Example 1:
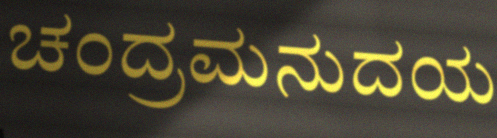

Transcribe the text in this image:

ಚಂದ್ರಮನುದಯ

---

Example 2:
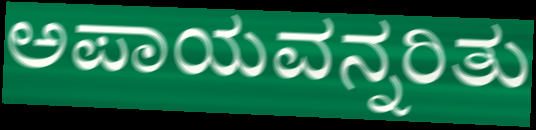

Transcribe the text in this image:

ಅಪಾಯವನ್ನರಿತು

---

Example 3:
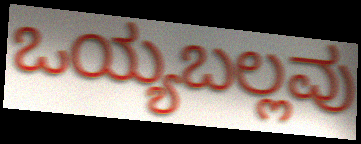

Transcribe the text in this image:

ಒಯ್ಯಬಲ್ಲವು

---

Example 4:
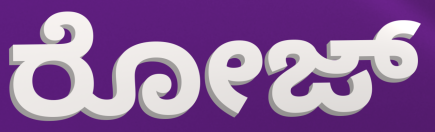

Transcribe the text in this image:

ರೋಜ್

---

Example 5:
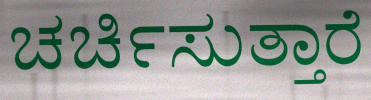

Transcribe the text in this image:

ಚರ್ಚಿಸುತ್ತಾರೆ